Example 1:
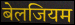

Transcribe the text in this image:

बेलजियम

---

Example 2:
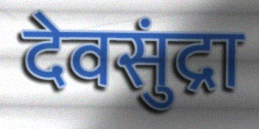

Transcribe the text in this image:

देवसुंद्रा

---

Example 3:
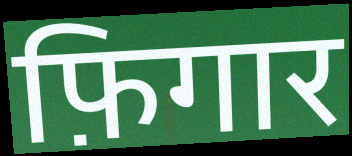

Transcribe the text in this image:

फ़िगार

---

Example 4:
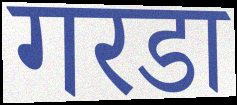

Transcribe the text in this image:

गरडा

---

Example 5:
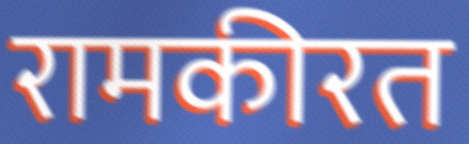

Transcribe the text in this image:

रामकीरत